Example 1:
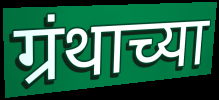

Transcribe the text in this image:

ग्रंथाच्या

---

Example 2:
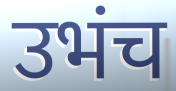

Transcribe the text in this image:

उभंच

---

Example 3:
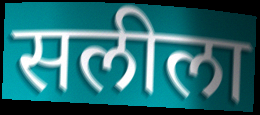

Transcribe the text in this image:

सलीला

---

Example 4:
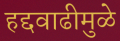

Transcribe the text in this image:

हद्दवाढीमुळे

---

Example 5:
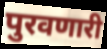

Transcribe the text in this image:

पुरवणारी